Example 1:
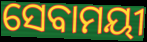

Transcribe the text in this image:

ସେବାମୟୀ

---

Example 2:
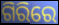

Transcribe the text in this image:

ଗିରିରେ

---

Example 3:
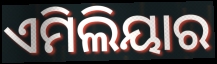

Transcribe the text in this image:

ଏମିଲିୟାର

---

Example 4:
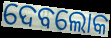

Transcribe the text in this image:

ଦେବଲୋକ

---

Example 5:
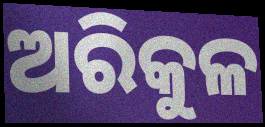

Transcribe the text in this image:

ଅରିକୁଳ